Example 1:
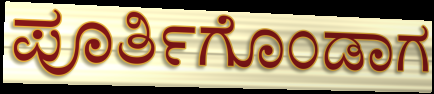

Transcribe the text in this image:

ಪೂರ್ತಿಗೊಂಡಾಗ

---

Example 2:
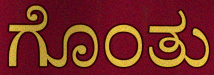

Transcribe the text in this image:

ಗೊಂತು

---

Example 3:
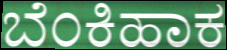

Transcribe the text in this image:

ಬೆಂಕಿಹಾಕ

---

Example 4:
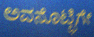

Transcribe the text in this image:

ಅವನೊಟ್ಟಿಗೇ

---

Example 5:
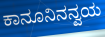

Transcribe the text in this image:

ಕಾನೂನಿನನ್ವಯ